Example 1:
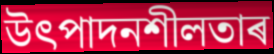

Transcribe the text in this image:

উৎপাদনশীলতাৰ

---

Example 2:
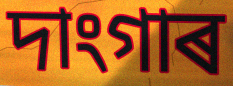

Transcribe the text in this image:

দাংগাৰ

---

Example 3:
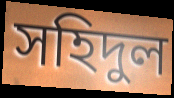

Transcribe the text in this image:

সহিদুল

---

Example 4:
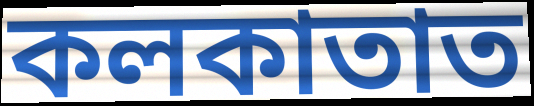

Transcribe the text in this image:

কলকাতাত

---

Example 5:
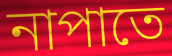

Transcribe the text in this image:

নাপাতে